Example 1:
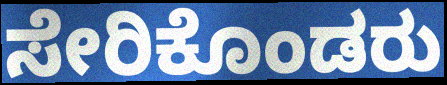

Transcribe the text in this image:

ಸೇರಿಕೊಂಡರು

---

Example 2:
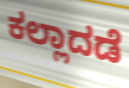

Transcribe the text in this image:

ಕಲ್ಲಾದಡೆ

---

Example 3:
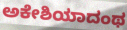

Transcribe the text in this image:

ಅಕೇಶಿಯಾದಂಥ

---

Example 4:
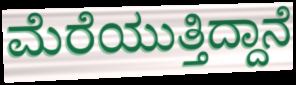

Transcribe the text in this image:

ಮೆರೆಯುತ್ತಿದ್ದಾನೆ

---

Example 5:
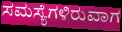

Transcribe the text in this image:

ಸಮಸ್ಯೆಗಳಿರುವಾಗ